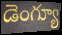
డెంగ్యూ